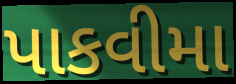
પાકવીમા